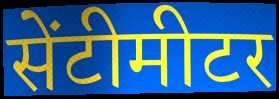
सेंटीमीटर